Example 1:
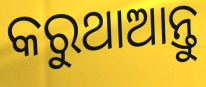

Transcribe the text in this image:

କରୁଥାଆନ୍ତୁ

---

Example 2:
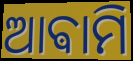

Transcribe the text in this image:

ଆଵାମି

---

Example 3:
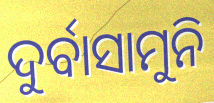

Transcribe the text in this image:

ଦୁର୍ବାସାମୁନି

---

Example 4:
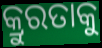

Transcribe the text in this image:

କ୍ରୁରତାକୁ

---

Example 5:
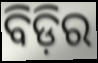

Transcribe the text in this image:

ବିଡ଼ିର